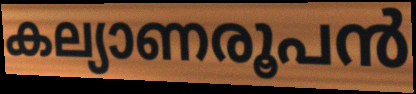
കല്യാണരൂപൻ